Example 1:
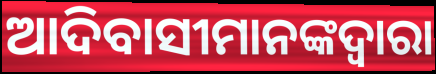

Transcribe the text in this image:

ଆଦିବାସୀମାନଙ୍କଦ୍ୱାରା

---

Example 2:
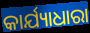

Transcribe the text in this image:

କାର୍ଯ୍ୟାଧାରା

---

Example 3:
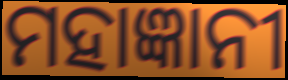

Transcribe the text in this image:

ମହାଜ୍ଞାନୀ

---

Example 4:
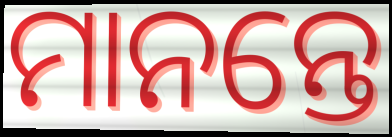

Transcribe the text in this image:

ମାନନ୍ତେ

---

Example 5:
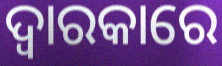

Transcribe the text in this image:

ଦ୍ବାରକାରେ